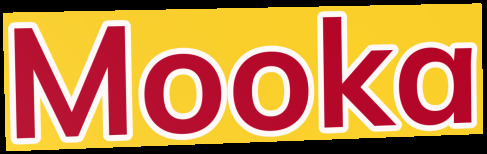
Mooka